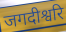
जगदीश्वरि